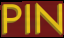
PIN